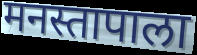
मनस्तापाला